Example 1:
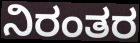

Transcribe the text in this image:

ನಿರಂತರ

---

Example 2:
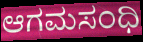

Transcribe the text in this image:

ಆಗಮಸಂಧಿ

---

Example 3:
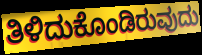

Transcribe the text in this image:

ತಿಳಿದುಕೊಂಡಿರುವುದು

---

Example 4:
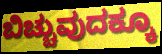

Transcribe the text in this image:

ಬಿಚ್ಚುವುದಕ್ಕೂ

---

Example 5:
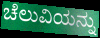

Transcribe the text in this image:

ಚೆಲುವಿಯನ್ನು